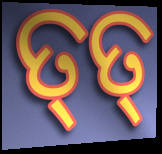
ତ୍‌ତ୍